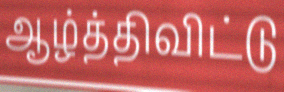
ஆழ்த்திவிட்டு